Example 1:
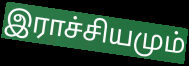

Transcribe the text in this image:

இராச்சியமும்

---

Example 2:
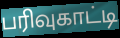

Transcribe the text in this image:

பரிவுகாட்டி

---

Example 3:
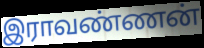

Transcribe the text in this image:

இராவண்ணன்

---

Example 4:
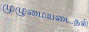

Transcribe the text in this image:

முழுமையடைதல்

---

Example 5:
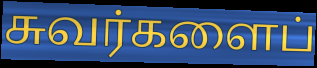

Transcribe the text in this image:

சுவர்களைப்